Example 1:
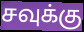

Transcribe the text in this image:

சவுக்கு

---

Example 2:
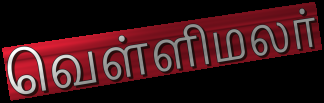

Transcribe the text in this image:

வெள்ளிமலர்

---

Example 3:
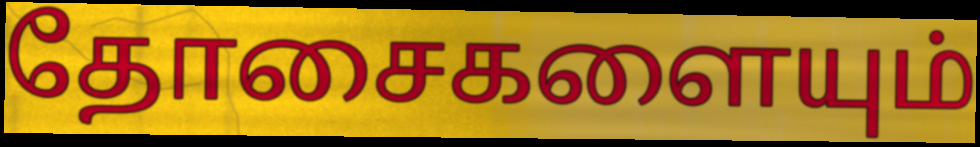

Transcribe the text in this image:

தோசைகளையும்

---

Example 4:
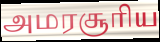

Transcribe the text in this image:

அமரசூரிய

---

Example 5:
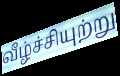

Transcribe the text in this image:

வீழ்ச்சியுற்று